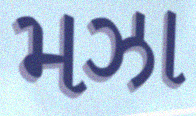
મઝા